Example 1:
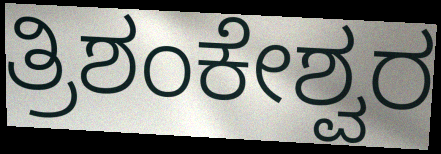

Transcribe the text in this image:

ತ್ರಿಶಂಕೇಶ್ವರ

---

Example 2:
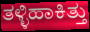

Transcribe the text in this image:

ತಳ್ಳಿಹಾಕಿತ್ತು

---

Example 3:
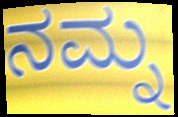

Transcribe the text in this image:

ನಮ್ನ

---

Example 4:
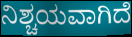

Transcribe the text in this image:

ನಿಶ್ಚಯವಾಗಿದೆ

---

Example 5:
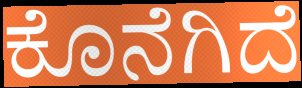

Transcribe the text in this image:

ಕೊನೆಗಿದೆ